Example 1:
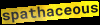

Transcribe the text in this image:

spathaceous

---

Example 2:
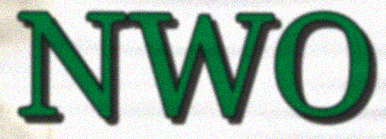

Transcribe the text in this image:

NWO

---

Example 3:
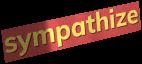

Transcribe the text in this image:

sympathize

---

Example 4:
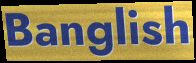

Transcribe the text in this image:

Banglish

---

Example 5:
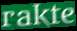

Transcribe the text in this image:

rakte